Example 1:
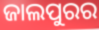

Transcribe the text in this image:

ଜାଲପୁରର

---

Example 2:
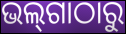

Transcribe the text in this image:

ଭଲ୍‌ଗାଠାରୁ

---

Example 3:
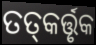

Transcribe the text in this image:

ତତ୍‌କର୍ତ୍ତୃକ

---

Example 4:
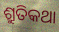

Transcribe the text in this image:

ଶ୍ରୁତିକଥା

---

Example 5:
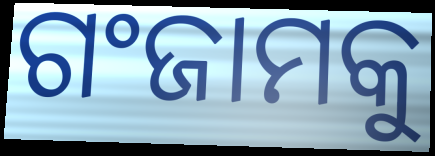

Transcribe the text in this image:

ଗଂଜାମକୁ